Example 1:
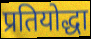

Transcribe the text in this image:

प्रतियोद्धा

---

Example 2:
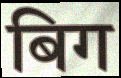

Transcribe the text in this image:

बिग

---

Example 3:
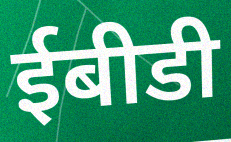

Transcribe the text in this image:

ईबीडी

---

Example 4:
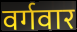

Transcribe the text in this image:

वर्गवार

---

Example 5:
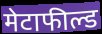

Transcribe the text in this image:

मेटाफील्ड